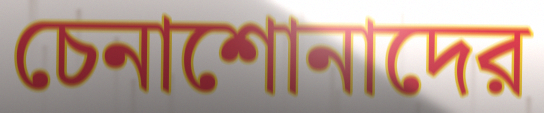
চেনাশোনাদের